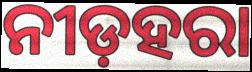
ନୀଡ଼ହରା